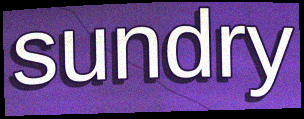
sundry